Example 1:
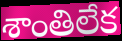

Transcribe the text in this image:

శాంతిలేక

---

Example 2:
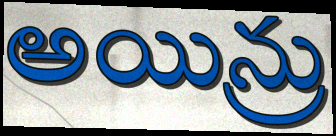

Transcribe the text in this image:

అయిన్రు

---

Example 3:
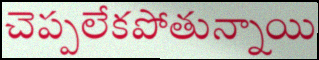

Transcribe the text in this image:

చెప్పలేకపోతున్నాయి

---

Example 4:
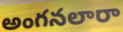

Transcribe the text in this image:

అంగనలారా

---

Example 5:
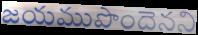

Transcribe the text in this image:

జయముపొందెనని